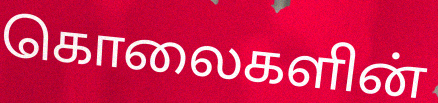
கொலைகளின்